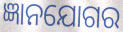
ଜ୍ଞାନଯୋଗର